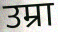
उम्रा